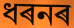
ধৰনৰ